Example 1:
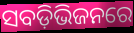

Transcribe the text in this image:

ସବଡ଼ିଭିଜନରେ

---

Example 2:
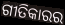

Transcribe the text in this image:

ଗୀତିକାରର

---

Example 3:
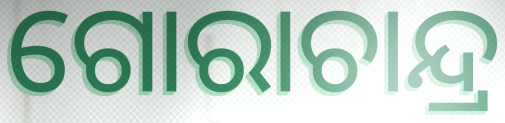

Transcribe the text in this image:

ଗୋରାଚାନ୍ଦ୍ର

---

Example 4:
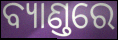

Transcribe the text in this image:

ବ୍ୟାଣ୍ଡରେ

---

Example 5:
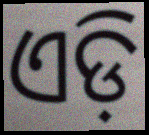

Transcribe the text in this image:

ଏଡ଼ି